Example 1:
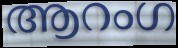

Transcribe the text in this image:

ആറംഗ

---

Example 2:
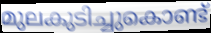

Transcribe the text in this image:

മുലകുടിച്ചുകൊണ്ട്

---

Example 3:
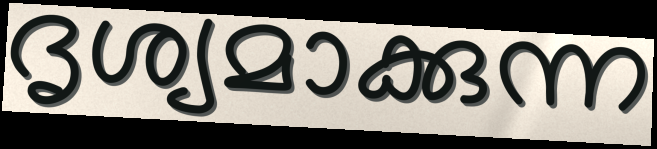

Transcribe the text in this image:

ദൃശ്യമാക്കുന്ന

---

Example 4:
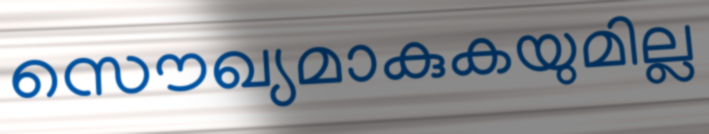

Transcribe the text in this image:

സൌഖ്യമാകുകയുമില്ല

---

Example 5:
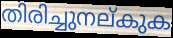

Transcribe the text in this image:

തിരിച്ചുനല്കുക